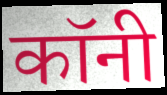
कॉनी